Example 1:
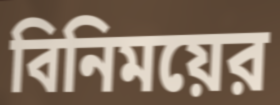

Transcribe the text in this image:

বিনিময়ের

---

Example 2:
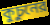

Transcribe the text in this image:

কুচুনের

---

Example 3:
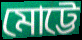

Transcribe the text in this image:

মোট্টে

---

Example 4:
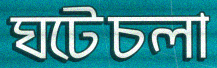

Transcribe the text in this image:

ঘটেচলা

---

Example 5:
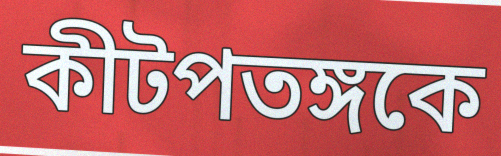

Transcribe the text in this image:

কীটপতঙ্গকে